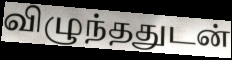
விழுந்ததுடன்